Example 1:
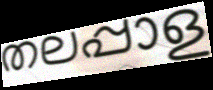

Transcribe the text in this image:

തലപ്പാള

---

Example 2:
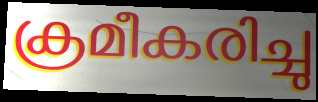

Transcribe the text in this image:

ക്രമീകരിച്ചു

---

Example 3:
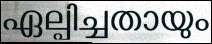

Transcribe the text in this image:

ഏല്പിച്ചതായും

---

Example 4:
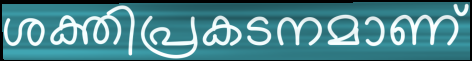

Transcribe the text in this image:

ശക്തിപ്രകടനമാണ്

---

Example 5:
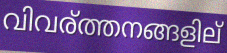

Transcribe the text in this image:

വിവര്ത്തനങ്ങളില്